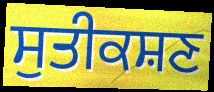
ਸੁਤੀਕਸ਼ਣ